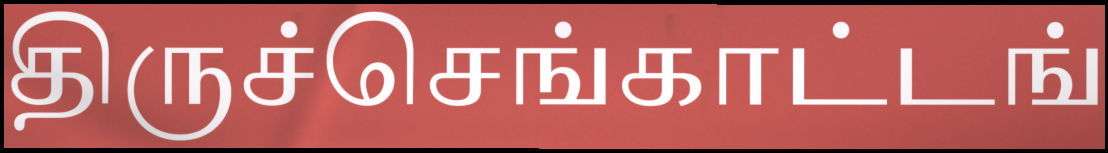
திருச்செங்காட்டங்